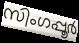
സിംഗപ്പൂർ